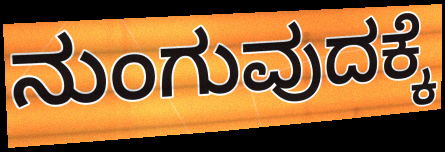
ನುಂಗುವುದಕ್ಕೆ